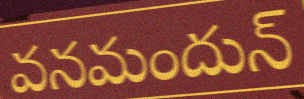
వనమందున్